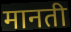
मानती